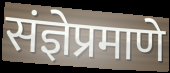
संज्ञेप्रमाणे